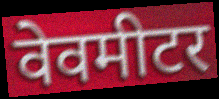
वेवमीटर